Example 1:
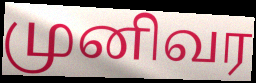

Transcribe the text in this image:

முனிவர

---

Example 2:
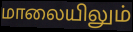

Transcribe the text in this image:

மாலையிலும்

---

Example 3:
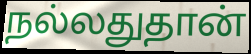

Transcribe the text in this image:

நல்லதுதான்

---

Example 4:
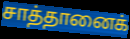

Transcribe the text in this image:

சாத்தானைக்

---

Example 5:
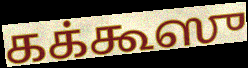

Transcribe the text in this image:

கக்கூஸு